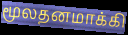
மூலதனமாக்கி